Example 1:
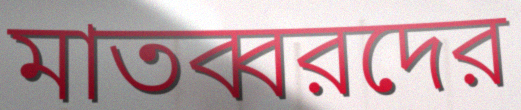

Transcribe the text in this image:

মাতব্বরদের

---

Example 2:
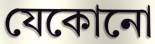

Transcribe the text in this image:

যেকোনো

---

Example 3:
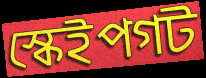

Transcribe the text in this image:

স্কেইপগট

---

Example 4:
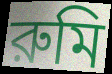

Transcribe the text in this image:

রুমি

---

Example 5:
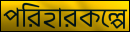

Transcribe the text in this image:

পরিহারকল্পে